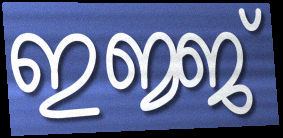
ഇജ്ജ്